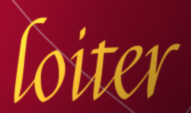
loiter